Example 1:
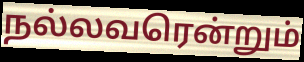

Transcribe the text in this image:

நல்லவரென்றும்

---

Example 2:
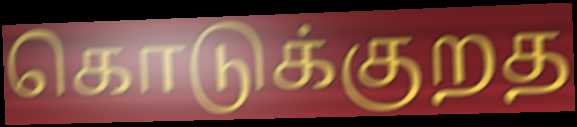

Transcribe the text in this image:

கொடுக்குறத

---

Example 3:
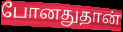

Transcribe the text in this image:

போனதுதான்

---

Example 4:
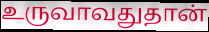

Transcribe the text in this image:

உருவாவதுதான்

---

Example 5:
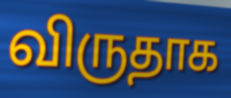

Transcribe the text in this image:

விருதாக